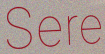
Sere